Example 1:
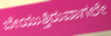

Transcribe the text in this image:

ಬೇಯುತ್ತಿರುವಾಗಲೇ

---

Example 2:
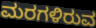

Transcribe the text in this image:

ಮರಗಳಿರುವ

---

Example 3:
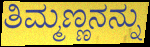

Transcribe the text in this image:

ತಿಮ್ಮಣ್ಣನನ್ನು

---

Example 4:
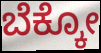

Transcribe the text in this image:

ಬೆಕ್ಕೋ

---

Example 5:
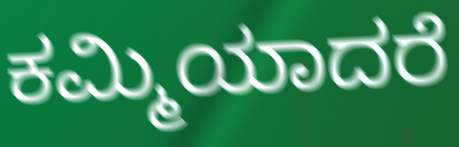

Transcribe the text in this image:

ಕಮ್ಮಿಯಾದರೆ